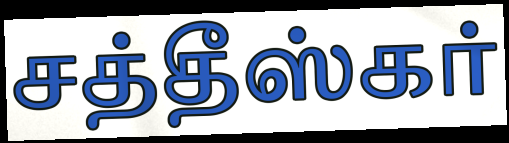
சத்தீஸ்கர்